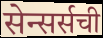
सेन्सर्सची